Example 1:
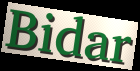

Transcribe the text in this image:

Bidar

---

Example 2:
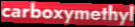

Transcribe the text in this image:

carboxymethyl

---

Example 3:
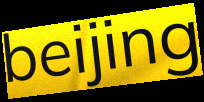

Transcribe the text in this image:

beijing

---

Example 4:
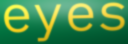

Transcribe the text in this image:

eyes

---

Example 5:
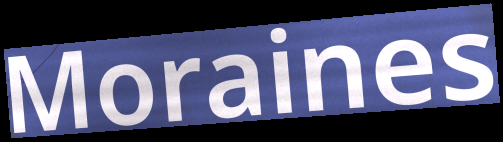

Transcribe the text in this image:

Moraines